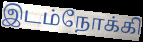
இடம்நோக்கி